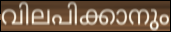
വിലപിക്കാനും